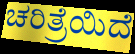
ಚರಿತ್ರೆಯಿದೆ